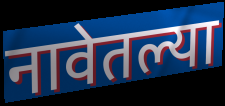
नावेतल्या